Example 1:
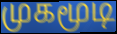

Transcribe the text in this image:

முகமூடி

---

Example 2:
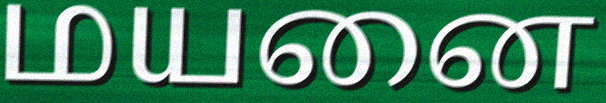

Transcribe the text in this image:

மயனை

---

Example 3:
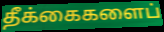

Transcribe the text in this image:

தீக்கைகளைப்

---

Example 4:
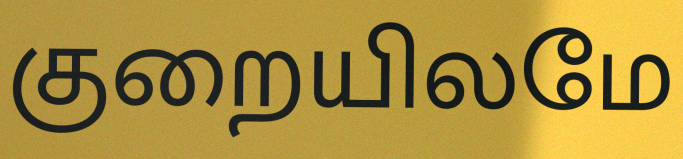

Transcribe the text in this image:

குறையிலமே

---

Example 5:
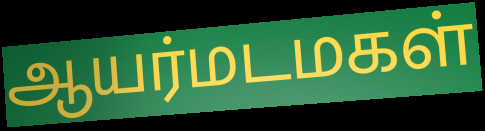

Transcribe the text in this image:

ஆயர்மடமகள்